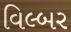
વિલ્બર